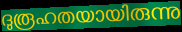
ദുരൂഹതയായിരുന്നു